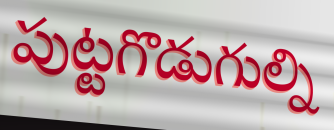
పుట్టగొడుగుల్ని